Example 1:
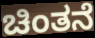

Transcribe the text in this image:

ಚಿಂತನೆ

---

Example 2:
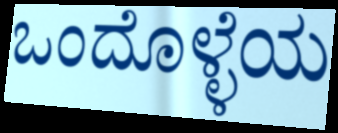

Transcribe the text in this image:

ಒಂದೊಳ್ಳೆಯ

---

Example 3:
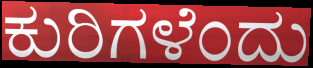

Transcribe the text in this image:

ಕುರಿಗಳೆಂದು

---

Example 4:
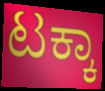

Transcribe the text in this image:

ಟಕ್ಕಾ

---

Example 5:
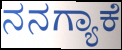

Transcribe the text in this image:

ನನಗ್ಯಾಕೆ